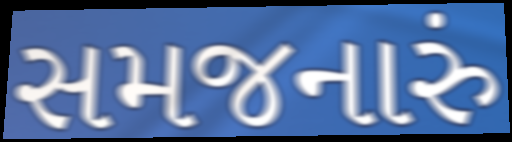
સમજનારું